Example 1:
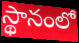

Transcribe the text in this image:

స్థానంలో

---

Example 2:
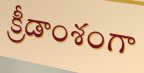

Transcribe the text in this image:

క్రీడాంశంగా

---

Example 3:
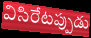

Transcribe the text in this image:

విసిరేటప్పుడు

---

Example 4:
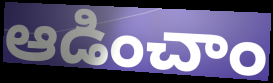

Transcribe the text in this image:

ఆడించాం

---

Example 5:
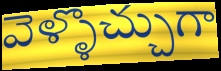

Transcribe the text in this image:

వెళ్ళొచ్చుగా